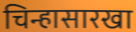
चिन्हासारखा